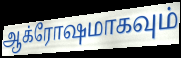
ஆக்ரோஷமாகவும்